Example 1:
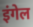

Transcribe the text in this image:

इंगेल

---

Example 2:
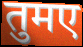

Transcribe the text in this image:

तुमए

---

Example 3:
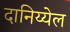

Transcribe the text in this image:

दानिय्येल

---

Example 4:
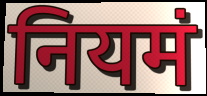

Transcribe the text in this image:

नियमं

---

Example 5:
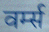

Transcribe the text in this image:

वर्म्स